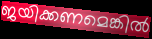
ജയിക്കണമെങ്കിൽ